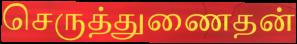
செருத்துணைதன்